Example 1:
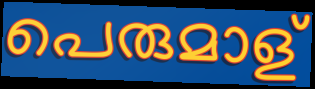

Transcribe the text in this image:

പെരുമാള്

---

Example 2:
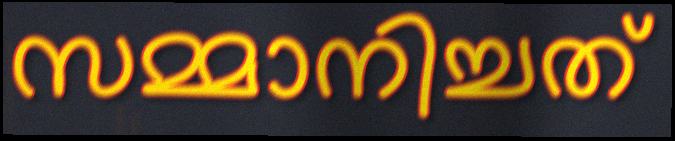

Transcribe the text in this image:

സമ്മാനിച്ചത്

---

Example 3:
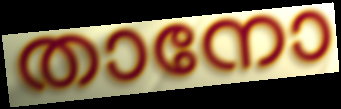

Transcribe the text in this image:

താനോ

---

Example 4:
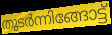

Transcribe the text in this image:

തുടർന്നിങ്ങോട്ട്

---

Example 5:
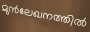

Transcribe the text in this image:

മുൻലേഖനത്തിൽ